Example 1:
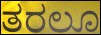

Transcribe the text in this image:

ತರಲೂ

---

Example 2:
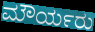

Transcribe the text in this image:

ಮೌರ್ಯರು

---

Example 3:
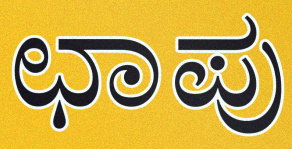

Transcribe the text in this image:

ಛಾಪು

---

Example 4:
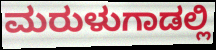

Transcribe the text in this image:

ಮರುಳುಗಾಡಲ್ಲಿ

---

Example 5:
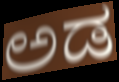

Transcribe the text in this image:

ಅಡ